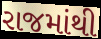
રાજમાંથી